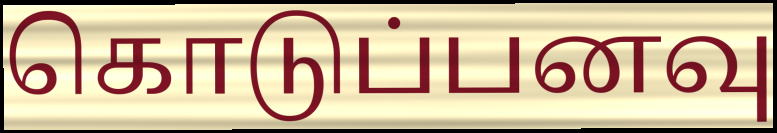
கொடுப்பனவு